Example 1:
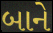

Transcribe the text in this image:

બાને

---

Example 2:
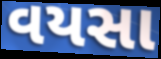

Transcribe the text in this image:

વયસા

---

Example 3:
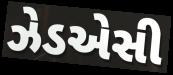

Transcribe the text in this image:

ઝેડએસી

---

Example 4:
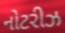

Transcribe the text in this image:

નોટરીઝ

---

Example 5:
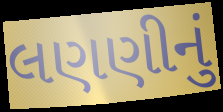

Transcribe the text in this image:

લણણીનું